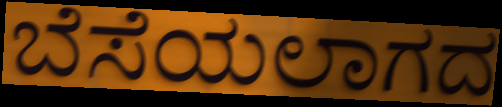
ಬೆಸೆಯಲಾಗದ